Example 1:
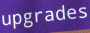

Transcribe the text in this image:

upgrades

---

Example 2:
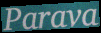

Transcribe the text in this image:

Parava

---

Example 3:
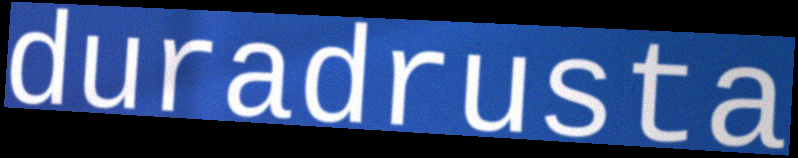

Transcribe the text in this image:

duradrusta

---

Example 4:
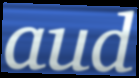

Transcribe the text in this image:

aud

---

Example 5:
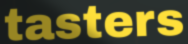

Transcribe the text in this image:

tasters